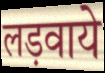
लड़वाये